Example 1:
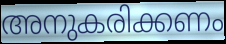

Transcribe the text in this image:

അനുകരിക്കണം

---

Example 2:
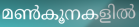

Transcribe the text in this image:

മൺകൂനകളിൽ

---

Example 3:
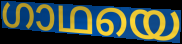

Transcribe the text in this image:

ഗാഥയെ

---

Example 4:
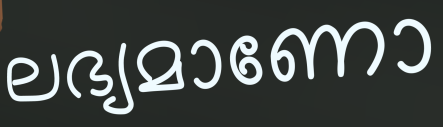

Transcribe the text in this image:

ലഭ്യമാണോ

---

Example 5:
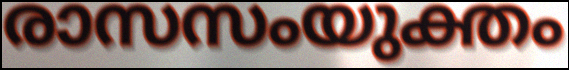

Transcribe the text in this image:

രാസസംയുക്തം